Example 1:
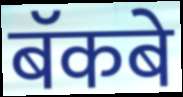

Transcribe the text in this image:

बॅकबे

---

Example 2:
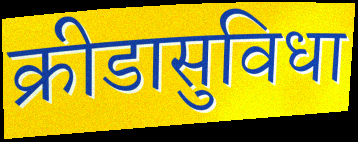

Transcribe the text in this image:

क्रीडासुविधा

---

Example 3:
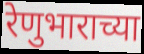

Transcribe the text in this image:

रेणुभाराच्या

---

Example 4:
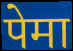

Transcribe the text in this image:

पेमा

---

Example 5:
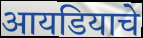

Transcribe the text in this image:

आयडियाचे